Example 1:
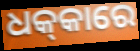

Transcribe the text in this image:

ଧକ୍‍କାରେ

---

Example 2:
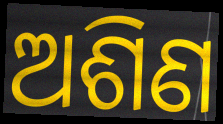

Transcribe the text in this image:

ଅଶିଣ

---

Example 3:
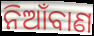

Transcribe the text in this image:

ନିଆଁବାଣ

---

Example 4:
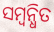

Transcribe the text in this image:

ସମ୍ଵନ୍ଧିତ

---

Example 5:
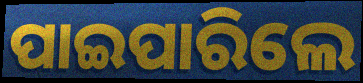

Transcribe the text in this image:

ପାଇପାରିଲେ